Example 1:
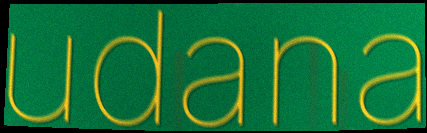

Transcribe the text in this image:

udana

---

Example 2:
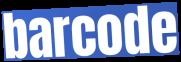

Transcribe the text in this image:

barcode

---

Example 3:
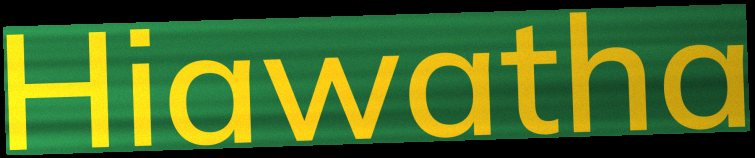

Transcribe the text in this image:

Hiawatha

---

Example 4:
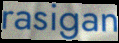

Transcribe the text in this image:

rasigan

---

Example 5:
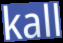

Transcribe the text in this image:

kall